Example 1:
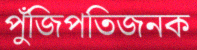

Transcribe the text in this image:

পুঁজিপতিজনক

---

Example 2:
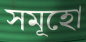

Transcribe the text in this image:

সমূহো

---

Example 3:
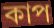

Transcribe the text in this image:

কাপ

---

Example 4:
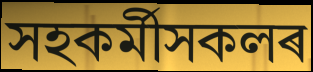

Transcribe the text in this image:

সহকৰ্মীসকলৰ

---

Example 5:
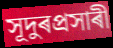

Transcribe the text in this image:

সূদুৰপ্ৰসাৰী